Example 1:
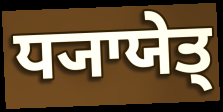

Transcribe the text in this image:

ਧ੍ਯਾਯੇਤ੍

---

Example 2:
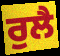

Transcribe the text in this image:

ਰੁਲੈ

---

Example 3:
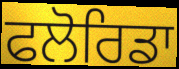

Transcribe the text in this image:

ਫਲੋਰਿਡਾ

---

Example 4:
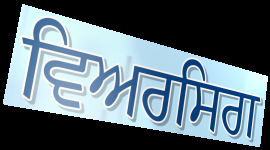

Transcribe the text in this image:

ਵਿਅਰਸਿਗ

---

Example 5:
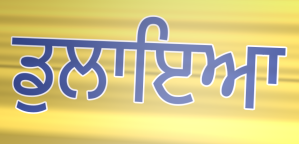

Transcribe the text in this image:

ਡੁਲਾਇਆ